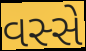
વસ્સે